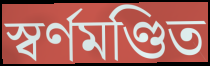
স্বর্ণমণ্ডিত